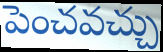
పెంచవచ్చు